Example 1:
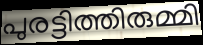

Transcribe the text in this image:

പുരട്ടിത്തിരുമ്മി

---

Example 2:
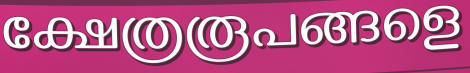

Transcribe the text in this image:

ക്ഷേത്രരൂപങ്ങളെ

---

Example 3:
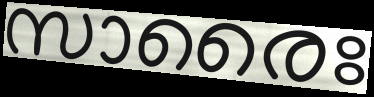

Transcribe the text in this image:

സാരൈഃ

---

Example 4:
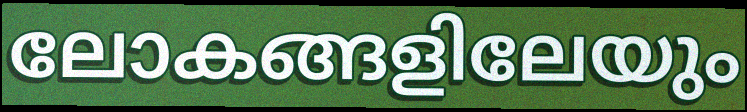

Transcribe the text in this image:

ലോകങ്ങളിലേയും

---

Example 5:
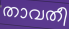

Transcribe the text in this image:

താവതീ